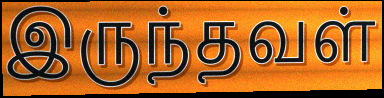
இருந்தவள்